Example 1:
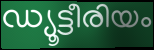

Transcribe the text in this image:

ഡ്യൂട്ടീരിയം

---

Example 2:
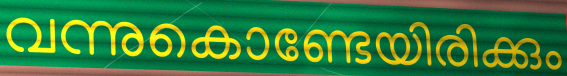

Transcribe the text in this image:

വന്നുകൊണ്ടേയിരിക്കും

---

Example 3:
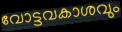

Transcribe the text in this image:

വോട്ടവകാശവും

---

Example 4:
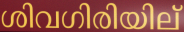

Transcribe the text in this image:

ശിവഗിരിയില്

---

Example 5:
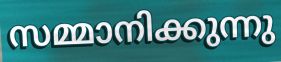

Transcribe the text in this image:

സമ്മാനിക്കുന്നു